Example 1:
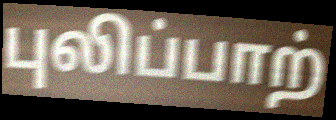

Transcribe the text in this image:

புலிப்பாற்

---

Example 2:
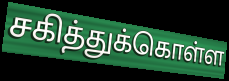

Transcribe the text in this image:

சகித்துக்கொள்ள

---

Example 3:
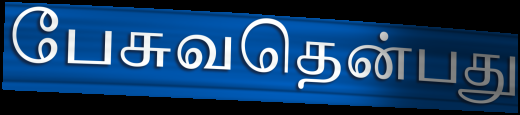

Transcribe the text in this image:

பேசுவதென்பது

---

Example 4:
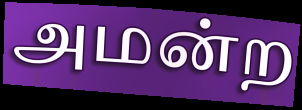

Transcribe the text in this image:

அமன்ற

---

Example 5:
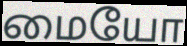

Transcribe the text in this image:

மையோ